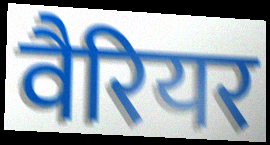
वैरियर